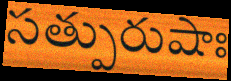
సత్పురుషాః